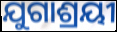
ଯୁଗାଶ୍ରୟୀ